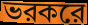
ভরকরে